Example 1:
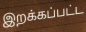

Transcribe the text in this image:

இறக்கப்பட்ட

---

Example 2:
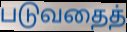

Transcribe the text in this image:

படுவதைத்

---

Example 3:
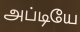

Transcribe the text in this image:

அப்டியே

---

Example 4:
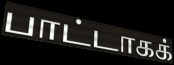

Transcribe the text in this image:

பாட்டாகக்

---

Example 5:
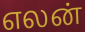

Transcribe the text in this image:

எலன்